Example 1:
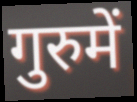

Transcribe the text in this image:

गुरुमें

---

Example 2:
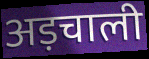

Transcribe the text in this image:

अड़चाली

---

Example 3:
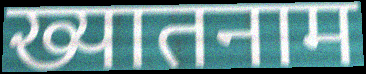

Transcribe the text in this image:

ख्यातनाम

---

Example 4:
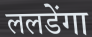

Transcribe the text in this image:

ललडेंगा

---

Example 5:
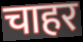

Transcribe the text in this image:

चाहर